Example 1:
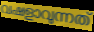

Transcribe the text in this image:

വഷളാവുന്നത്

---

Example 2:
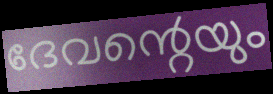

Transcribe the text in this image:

ദേവന്റെയും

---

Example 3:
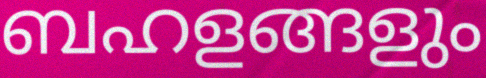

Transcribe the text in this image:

ബഹളങ്ങളും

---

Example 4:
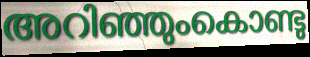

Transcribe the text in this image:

അറിഞ്ഞുംകൊണ്ടു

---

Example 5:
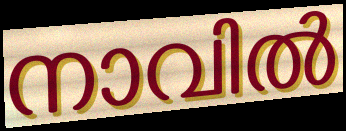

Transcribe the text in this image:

നാവിൽ